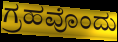
ಗ್ರಹವೊಂದು